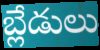
బ్లేడులు